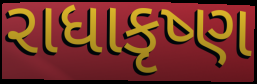
રાધાકૃષ્ણ